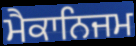
ਮੈਕਾਨਿਜਮ